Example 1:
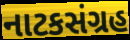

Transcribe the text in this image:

નાટકસંગ્રહ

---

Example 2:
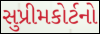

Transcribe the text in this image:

સુપ્રીમકોર્ટનો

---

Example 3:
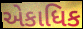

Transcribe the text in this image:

એકાધિક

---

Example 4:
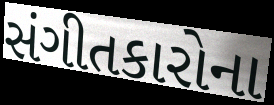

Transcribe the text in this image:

સંગીતકારોના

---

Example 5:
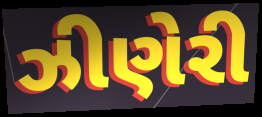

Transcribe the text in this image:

ઝીણેરી